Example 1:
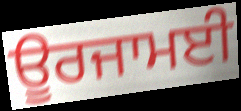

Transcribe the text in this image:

ਊਰਜਾਮਈ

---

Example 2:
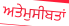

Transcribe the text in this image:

ਅਤੇਮੁਸੀਬਤਾਂ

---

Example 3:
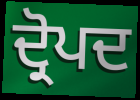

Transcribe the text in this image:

ਦ੍ਰੋਪਦ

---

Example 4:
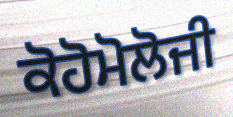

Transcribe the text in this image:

ਕੋਹੋਮੋਲੋਜੀ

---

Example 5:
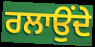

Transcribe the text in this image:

ਰਲਾਉਂਦੇ